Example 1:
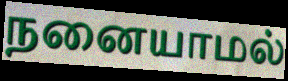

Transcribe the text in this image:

நனையாமல்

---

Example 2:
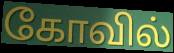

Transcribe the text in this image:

கோவில்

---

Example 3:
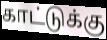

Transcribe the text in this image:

காட்டுக்கு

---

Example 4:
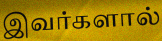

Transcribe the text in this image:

இவர்களால்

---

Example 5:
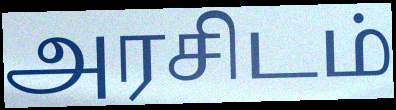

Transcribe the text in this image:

அரசிடம்